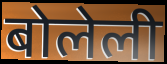
बोलेली